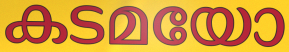
കടമയോ